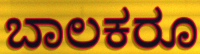
ಬಾಲಕರೂ